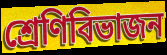
শ্রেণিবিভাজন